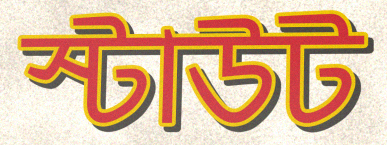
স্টাউট